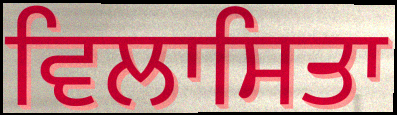
ਵਿਲਾਸਿਤਾ